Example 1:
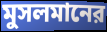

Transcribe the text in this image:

মুসলমানের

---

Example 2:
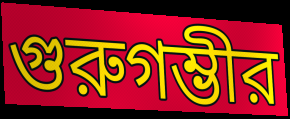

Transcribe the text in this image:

গুরুগম্ভীর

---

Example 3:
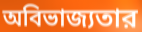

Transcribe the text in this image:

অবিভাজ্যতার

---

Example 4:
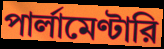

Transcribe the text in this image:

পার্লামেণ্টারি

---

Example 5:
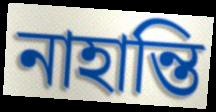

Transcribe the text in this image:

নাহান্তি